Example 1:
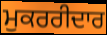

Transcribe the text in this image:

ਮੁਕਰਰੀਦਾਰ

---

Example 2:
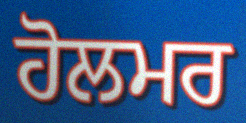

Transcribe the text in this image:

ਹੋਲਮਰ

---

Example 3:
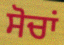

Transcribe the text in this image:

ਸੋਚਾਂ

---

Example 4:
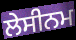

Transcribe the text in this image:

ਲੇਸੀਨਮ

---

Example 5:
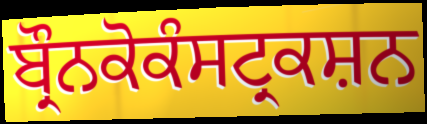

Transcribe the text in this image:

ਬ੍ਰੌਨਕੋਕੰਸਟ੍ਰਕਸ਼ਨ